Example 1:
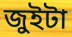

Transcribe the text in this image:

জুইটা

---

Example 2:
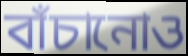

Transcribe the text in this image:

বাঁচানোও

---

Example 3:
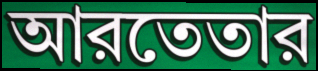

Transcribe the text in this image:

আরতেতার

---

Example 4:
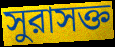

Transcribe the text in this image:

সুরাসক্ত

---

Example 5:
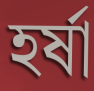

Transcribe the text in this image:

হর্ষা